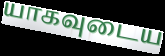
யாகவுடைய